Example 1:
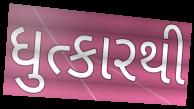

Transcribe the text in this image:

ધુત્કારથી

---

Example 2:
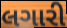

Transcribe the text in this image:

લગારી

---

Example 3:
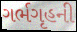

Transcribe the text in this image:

ગર્ભગૃહની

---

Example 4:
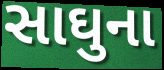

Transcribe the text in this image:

સાઘુના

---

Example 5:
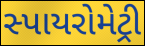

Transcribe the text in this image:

સ્પાયરોમેટ્રી